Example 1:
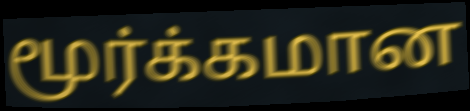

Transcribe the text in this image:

மூர்க்கமான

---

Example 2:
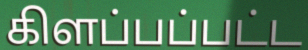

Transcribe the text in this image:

கிளப்பப்பட்ட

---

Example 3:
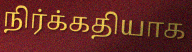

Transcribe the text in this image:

நிர்க்கதியாக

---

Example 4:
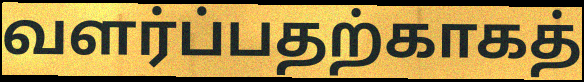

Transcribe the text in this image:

வளர்ப்பதற்காகத்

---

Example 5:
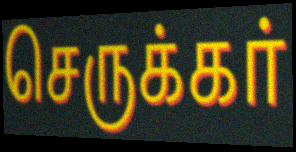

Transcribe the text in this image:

செருக்கர்